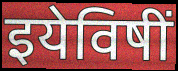
इयेविषीं